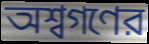
অশ্বগণের